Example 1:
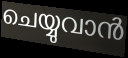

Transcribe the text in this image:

ചെയ്യുവാൻ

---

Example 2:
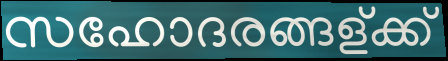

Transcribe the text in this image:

സഹോദരങ്ങള്ക്ക്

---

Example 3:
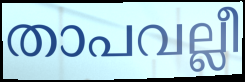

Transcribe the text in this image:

താപവല്ലീ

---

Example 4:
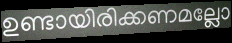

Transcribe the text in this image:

ഉണ്ടായിരിക്കണമല്ലോ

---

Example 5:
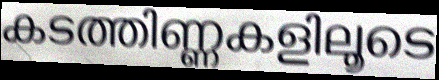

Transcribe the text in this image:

കടത്തിണ്ണകളിലൂടെ